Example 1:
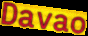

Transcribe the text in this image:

Davao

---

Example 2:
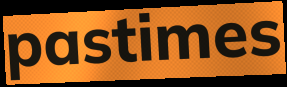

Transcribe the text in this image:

pastimes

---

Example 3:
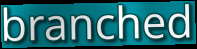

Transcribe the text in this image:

branched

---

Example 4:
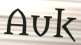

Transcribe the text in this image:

Auk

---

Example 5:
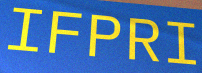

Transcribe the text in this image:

IFPRI